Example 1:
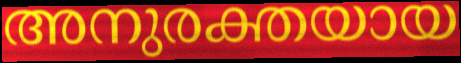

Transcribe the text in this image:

അനുരക്തയായ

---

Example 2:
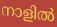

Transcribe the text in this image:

നാളിൽ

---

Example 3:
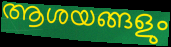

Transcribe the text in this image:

ആശയങ്ങളും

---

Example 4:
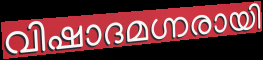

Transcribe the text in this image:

വിഷാദമഗ്നരായി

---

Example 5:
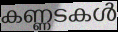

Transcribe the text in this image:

കണ്ണടകൾ